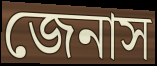
জেনাস